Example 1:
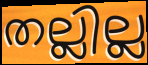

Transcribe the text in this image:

തല്ലില്ല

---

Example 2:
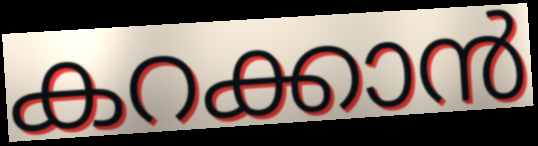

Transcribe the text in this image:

കറക്കാൻ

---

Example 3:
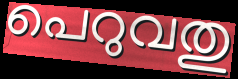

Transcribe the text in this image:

പെറുവതു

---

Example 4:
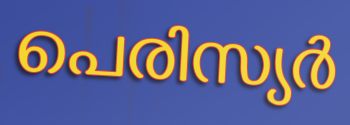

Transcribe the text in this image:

പെരിസ്യർ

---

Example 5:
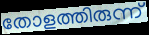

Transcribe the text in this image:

തോളത്തിരുന്ന്